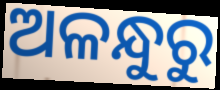
ଅଳନ୍ଧୁରୁ